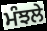
ਮੰਝਲੇ